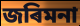
জৰিমনা